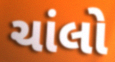
ચાંલો